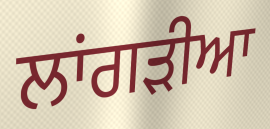
ਲਾਂਗੜੀਆ